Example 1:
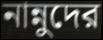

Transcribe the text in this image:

নান্নুদের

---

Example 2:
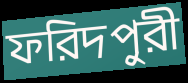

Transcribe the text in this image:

ফরিদপুরী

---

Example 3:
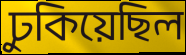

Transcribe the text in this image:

ঢুকিয়েছিল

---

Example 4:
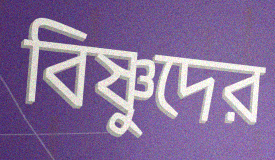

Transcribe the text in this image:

বিষ্ণুদের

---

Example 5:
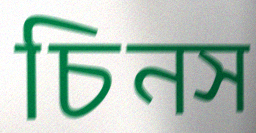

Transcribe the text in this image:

চিনস